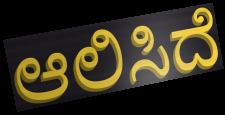
ಆಲಿಸಿದೆ